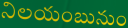
నిలయంబునుం